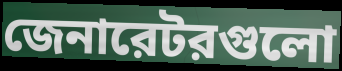
জেনারেটরগুলো